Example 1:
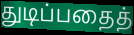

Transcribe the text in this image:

துடிப்பதைத்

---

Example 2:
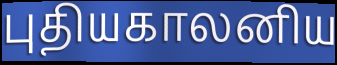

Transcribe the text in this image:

புதியகாலனிய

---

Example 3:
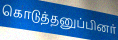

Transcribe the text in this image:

கொடுத்தனுப்பினர்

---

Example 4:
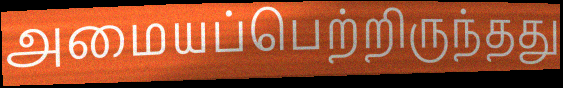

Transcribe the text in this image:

அமையப்பெற்றிருந்தது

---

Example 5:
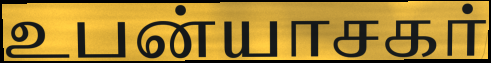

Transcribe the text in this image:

உபன்யாசகர்